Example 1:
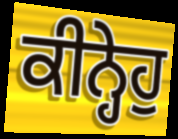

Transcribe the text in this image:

ਕੀਨ੍ਹੇਹੁ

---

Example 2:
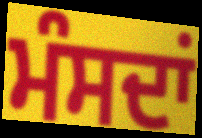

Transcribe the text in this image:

ਮੰਸਦਾਂ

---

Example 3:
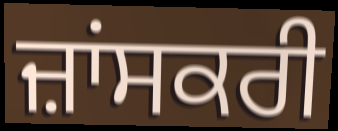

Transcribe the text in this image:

ਜ਼ਾਂਸਕਰੀ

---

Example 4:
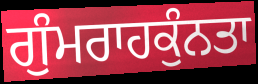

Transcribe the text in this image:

ਗੁੰਮਰਾਹਕੁੰਨਤਾ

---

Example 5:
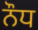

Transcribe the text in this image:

ਨੌਧ